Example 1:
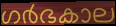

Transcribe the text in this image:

ഗർഭകാല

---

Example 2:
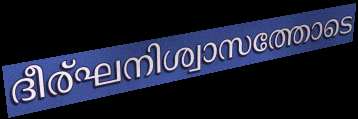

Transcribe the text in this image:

ദീര്ഘനിശ്വാസത്തോടെ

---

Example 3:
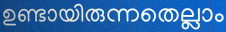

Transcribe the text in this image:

ഉണ്ടായിരുന്നതെല്ലാം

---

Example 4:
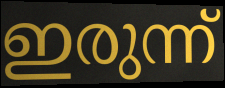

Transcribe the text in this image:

ഇരുന്ന്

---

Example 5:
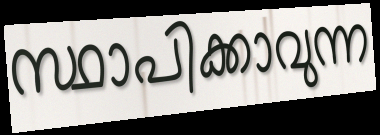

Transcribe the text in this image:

സ്ഥാപിക്കാവുന്ന